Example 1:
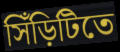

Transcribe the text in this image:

সিঁড়িটিতে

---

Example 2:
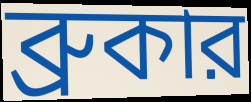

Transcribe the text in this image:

ব্রুকার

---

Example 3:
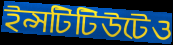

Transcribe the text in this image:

ইন্সটিটিউটেও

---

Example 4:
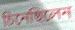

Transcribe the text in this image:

চিনেছিলেন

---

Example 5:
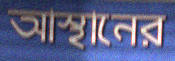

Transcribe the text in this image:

আস্থানের